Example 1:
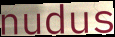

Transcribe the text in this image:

nudus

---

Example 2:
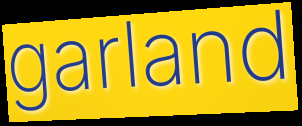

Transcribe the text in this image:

garland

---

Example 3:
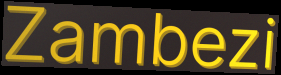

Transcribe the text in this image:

Zambezi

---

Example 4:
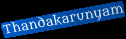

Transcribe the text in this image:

Thandakarunyam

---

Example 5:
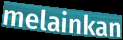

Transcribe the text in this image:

melainkan